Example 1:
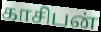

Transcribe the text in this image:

காசிபன்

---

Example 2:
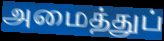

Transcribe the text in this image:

அமைத்துப்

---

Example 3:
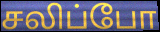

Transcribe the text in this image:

சலிப்போ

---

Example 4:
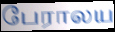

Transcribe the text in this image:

பேராலய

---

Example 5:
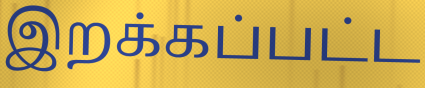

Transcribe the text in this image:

இறக்கப்பட்ட